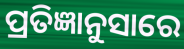
ପ୍ରତିଜ୍ଞାନୁସାରେ